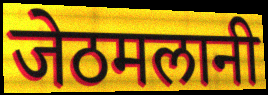
जेठमलानी